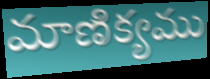
మాణిక్యము